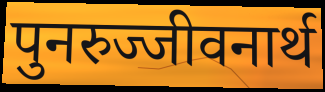
पुनरुज्जीवनार्थ